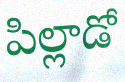
పిల్లాడో